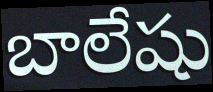
బాలేషు